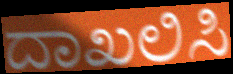
ದಾಖಲಿಸಿ